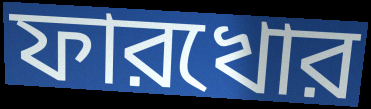
ফারখোর